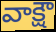
వాక్షౌ